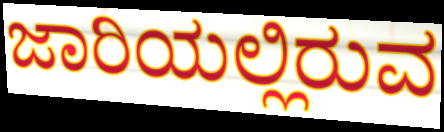
ಜಾರಿಯಲ್ಲಿರುವ